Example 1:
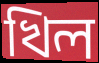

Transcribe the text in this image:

খিল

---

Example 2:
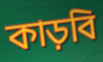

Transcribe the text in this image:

কাড়বি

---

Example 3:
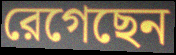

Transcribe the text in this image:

রেগেছেন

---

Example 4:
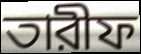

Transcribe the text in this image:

তারীফ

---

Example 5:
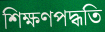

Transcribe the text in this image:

শিক্ষণপদ্ধতি